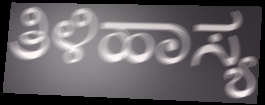
ತಿಳಿಹಾಸ್ಯ